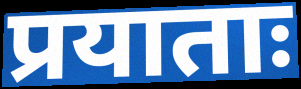
प्रयाताः